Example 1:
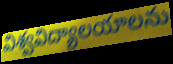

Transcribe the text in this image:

విశ్వవిద్యాలయాలను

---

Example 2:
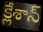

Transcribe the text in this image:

క్లేశాన్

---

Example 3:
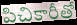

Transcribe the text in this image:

పిచికారీతో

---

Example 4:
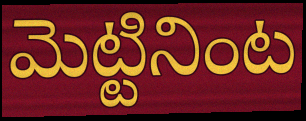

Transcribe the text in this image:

మెట్టినింట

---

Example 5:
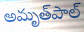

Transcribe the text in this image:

అమృత్‌పాల్